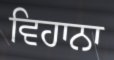
ਵਿਹਾਨਾ